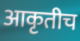
आकृतीच